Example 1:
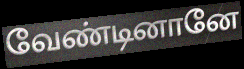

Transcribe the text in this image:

வேண்டினானே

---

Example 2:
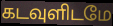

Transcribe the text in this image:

கடவுளிடமே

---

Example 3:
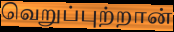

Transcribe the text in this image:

வெறுப்புற்றான்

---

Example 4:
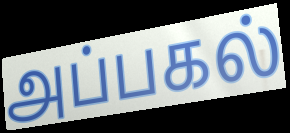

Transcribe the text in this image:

அப்பகல்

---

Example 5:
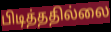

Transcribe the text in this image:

பிடித்ததில்லை